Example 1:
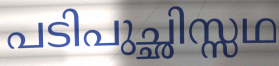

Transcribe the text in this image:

പടിപുച്ഛിസ്സഥ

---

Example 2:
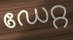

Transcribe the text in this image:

ഡേറ്റ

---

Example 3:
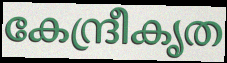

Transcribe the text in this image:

കേന്ദ്രീകൃത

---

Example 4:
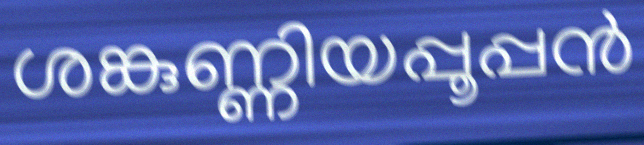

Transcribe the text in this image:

ശങ്കുണ്ണിയപ്പൂപ്പൻ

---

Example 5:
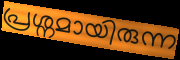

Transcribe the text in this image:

പ്രശ്നമായിരുന്ന